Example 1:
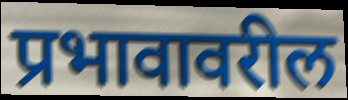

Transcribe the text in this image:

प्रभावावरील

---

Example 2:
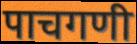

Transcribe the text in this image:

पाचगणी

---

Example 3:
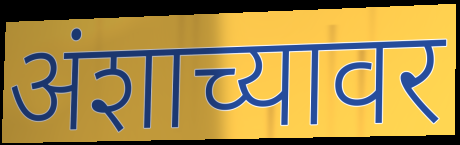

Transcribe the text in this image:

अंशाच्यावर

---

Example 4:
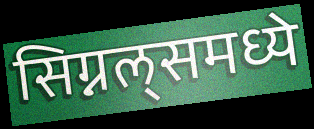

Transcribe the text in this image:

सिग्नल्समध्ये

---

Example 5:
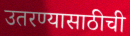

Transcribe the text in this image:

उतरण्यासाठीची